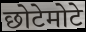
छोटेमोटे